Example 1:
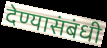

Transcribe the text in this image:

देण्यासंबंधी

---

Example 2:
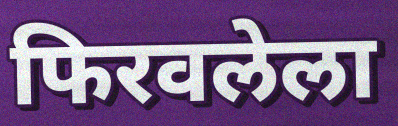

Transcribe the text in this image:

फिरवलेला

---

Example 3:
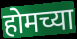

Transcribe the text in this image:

होमच्या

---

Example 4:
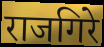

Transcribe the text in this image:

राजगिरे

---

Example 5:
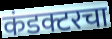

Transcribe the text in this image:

कंडक्टरचा